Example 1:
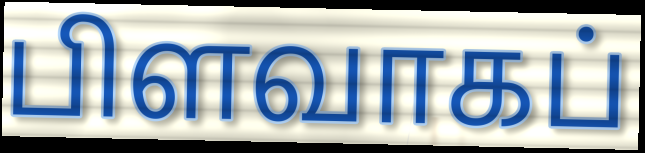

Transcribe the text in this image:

பிளவாகப்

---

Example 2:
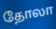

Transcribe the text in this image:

தோலா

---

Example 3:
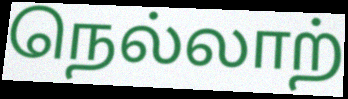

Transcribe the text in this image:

நெல்லாற்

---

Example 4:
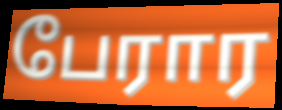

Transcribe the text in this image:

பேரார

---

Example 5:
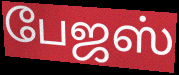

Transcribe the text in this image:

பேஜஸ்